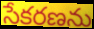
సేకరణను